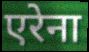
एरेना